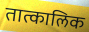
तात्कालिक